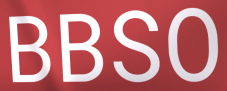
BBSO